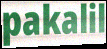
pakalil